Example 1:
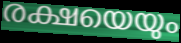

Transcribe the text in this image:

രക്ഷയെയും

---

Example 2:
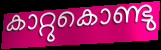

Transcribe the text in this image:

കാറ്റുകൊണ്ടു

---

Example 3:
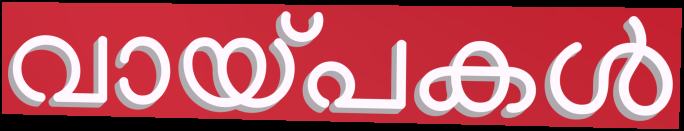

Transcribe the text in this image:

വായ്പകൾ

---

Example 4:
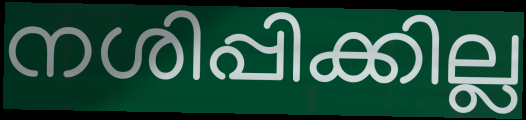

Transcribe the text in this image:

നശിപ്പിക്കില്ല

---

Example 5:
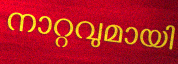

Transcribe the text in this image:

നാറ്റവുമായി